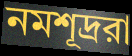
নমশূদ্ররা